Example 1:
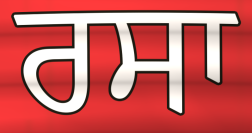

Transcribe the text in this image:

ਰਸਾ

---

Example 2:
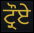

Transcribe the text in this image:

ਟ੍ਰੌਏ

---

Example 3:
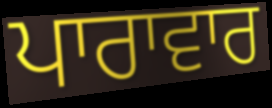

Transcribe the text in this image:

ਪਾਰਾਵਾਰ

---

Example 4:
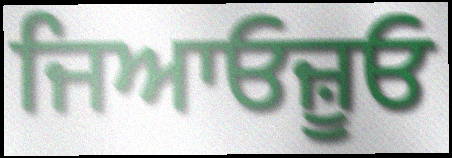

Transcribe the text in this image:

ਜਿਆਓਜ਼ੂਓ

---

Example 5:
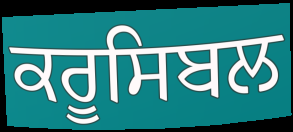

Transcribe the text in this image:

ਕਰੂਸਿਬਲ